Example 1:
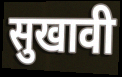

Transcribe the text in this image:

सुखावी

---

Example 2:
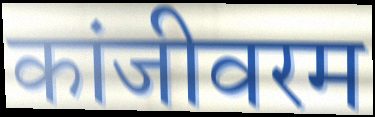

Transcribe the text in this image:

कांजीवरम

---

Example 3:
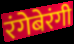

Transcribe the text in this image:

रंगेबेरंगी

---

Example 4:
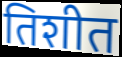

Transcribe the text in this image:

तिशीत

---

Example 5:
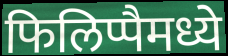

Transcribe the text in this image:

फिलिप्पैमध्ये